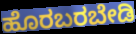
ಹೊರಬರಬೇಡಿ